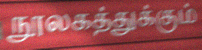
நூலகத்துக்கும்